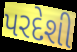
પરદેશી